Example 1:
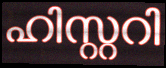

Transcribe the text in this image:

ഹിസ്റ്ററി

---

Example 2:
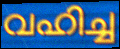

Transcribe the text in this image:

വഹിച്ച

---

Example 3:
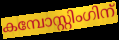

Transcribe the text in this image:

കമ്പോസ്റ്റിംഗിന്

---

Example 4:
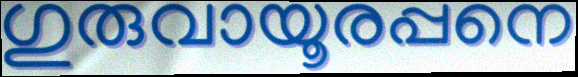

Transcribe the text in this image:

ഗുരുവായൂരപ്പനെ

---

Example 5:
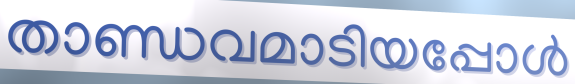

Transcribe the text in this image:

താണ്ഡവമാടിയപ്പോൾ